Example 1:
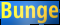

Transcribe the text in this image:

Bunge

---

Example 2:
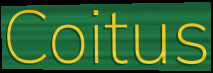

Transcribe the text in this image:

Coitus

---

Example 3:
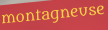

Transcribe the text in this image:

montagneuse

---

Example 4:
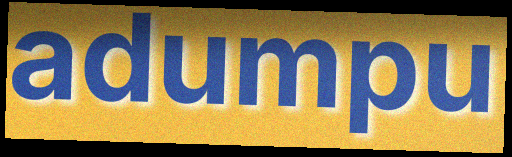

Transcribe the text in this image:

adumpu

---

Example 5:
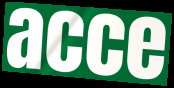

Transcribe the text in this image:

acce